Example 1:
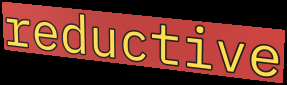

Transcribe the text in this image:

reductive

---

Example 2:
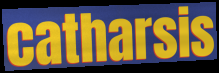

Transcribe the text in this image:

catharsis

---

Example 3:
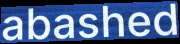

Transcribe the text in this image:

abashed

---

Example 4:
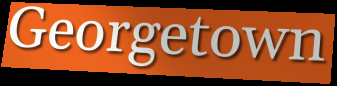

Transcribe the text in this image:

Georgetown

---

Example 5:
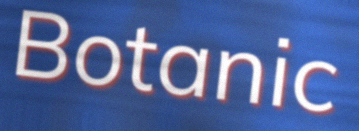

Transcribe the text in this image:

Botanic